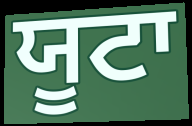
ਯੂਟਾ